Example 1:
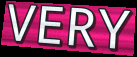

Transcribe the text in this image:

VERY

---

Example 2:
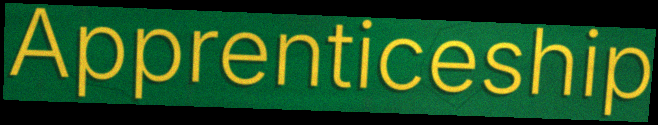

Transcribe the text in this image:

Apprenticeship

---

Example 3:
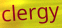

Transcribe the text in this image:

clergy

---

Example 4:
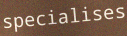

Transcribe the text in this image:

specialises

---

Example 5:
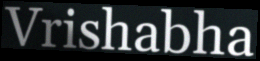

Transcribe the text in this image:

Vrishabha